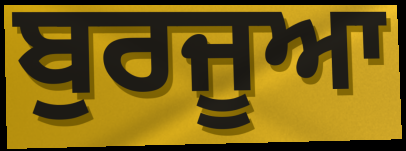
ਬੁਰਜੂਆ